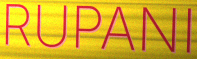
RUPANI